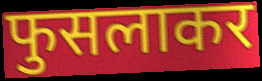
फुसलाकर